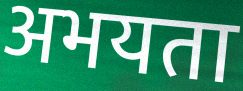
अभयता